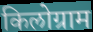
किलोग्राम